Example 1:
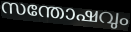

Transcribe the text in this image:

സന്തോഷവും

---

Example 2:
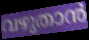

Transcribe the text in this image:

വഴുതാൻ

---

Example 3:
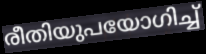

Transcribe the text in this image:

രീതിയുപയോഗിച്ച്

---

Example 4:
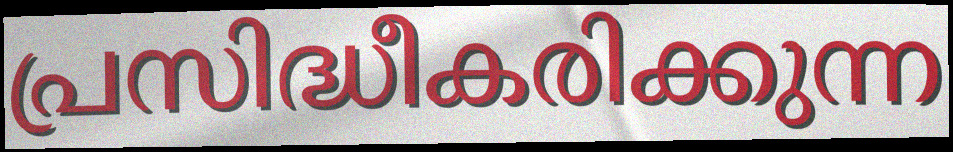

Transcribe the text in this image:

പ്രസിദ്ധീകരിക്കുന്ന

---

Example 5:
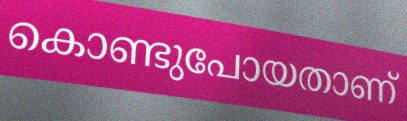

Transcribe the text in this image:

കൊണ്ടുപോയതാണ്